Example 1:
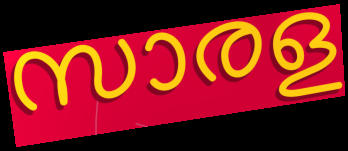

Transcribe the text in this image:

സാരള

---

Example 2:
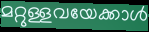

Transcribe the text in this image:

മറ്റുള്ളവയേക്കാൾ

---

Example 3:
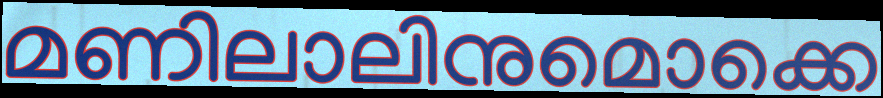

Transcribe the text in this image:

മണിലാലിനുമൊക്കെ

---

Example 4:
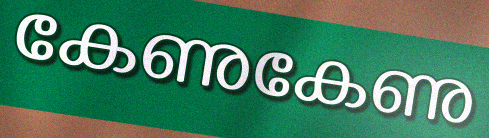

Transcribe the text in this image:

കേണുകേണു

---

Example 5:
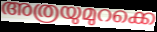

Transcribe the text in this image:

അത്രയുമുറക്കെ